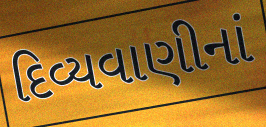
દિવ્યવાણીનાં